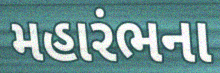
મહારંભના